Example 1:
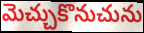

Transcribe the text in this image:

మెచ్చుకొనుచును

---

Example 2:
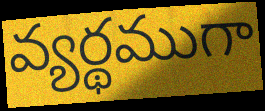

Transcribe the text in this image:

వ్యర్థముగా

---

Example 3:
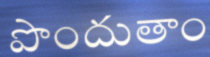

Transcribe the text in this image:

పొందుతాం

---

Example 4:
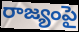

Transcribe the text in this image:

రాజ్యంపై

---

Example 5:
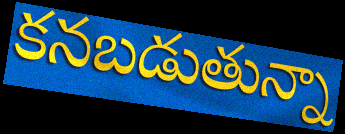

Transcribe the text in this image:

కనబడుతున్నా